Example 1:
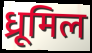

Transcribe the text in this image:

ध्रूमिल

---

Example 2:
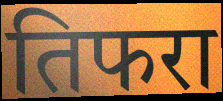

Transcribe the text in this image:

तिफरा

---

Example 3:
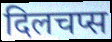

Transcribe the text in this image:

दिलचप्स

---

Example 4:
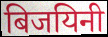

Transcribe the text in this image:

बिजयिनी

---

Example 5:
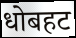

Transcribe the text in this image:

धोबहट